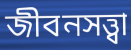
জীবনসত্ত্বা